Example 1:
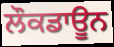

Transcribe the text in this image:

ਲੌਕਡਾਊਨ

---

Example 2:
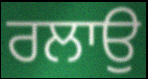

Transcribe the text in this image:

ਰਲਾਉ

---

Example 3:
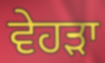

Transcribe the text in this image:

ਵੇਹੜਾ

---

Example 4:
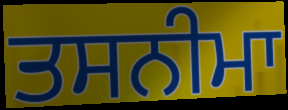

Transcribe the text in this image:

ਤਸਨੀਮਾ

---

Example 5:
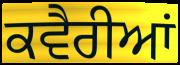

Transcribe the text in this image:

ਕਵੈਰੀਆਂ